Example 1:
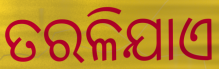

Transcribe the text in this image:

ତରଳିଯାଏ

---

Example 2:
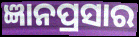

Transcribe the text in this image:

ଜ୍ଞାନପ୍ରସାର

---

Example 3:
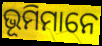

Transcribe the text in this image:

ଭୂମିମାନେ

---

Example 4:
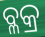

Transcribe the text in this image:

ବ୍ଳକ୍ର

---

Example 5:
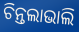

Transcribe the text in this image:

ଚିନ୍ତଲାଭାଲି